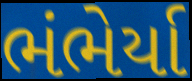
ભંભેર્યા